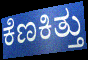
ಕೆಣಕಿತ್ತು